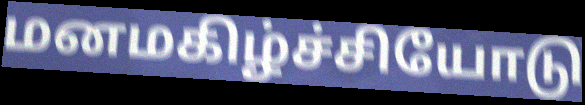
மனமகிழ்ச்சியோடு